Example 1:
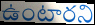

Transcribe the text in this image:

ఉంటారని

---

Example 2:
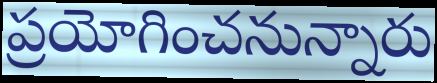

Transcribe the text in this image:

ప్రయోగించనున్నారు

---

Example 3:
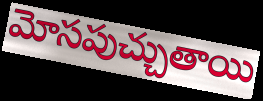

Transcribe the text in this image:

మోసపుచ్చుతాయి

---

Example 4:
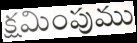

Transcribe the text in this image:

క్షమింపుము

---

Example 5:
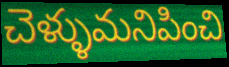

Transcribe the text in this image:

చెళ్ళుమనిపించి